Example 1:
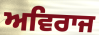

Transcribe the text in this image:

ਅਵਿਰਾਜ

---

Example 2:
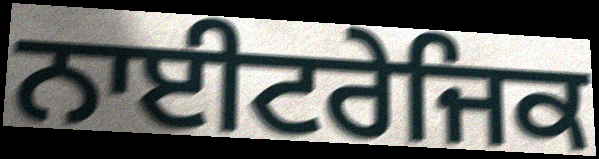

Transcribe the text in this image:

ਨਾਈਟਰੇਜਿਕ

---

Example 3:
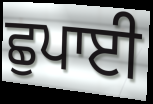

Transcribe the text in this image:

ਛੁਪਾਈ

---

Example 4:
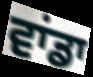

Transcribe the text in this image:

ਵਾਂਡਾ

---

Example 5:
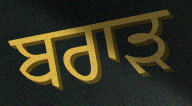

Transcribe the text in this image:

ਬਰਾੜ